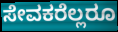
ಸೇವಕರೆಲ್ಲರೂ